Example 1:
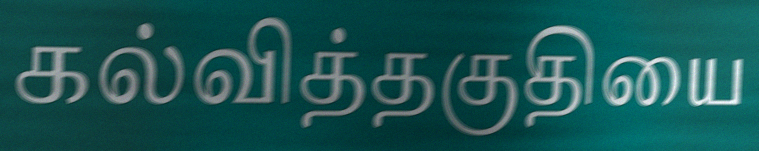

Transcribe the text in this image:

கல்வித்தகுதியை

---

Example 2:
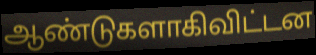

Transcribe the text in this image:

ஆண்டுகளாகிவிட்டன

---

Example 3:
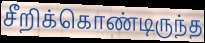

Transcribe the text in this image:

சீறிக்கொண்டிருந்த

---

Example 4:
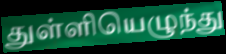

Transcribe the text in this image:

துள்ளியெழுந்து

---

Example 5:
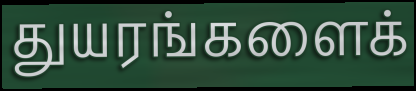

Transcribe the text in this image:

துயரங்களைக்